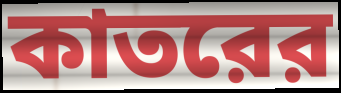
কাতরের